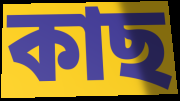
কাছ